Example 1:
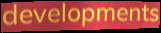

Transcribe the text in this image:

developments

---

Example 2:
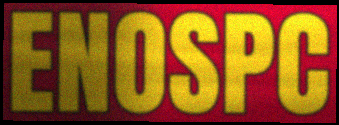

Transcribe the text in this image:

ENOSPC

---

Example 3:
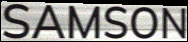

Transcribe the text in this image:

SAMSON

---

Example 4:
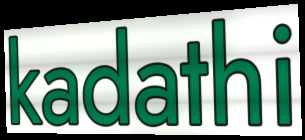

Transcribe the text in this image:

kadathi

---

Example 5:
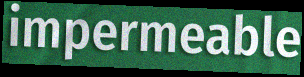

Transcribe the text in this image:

impermeable